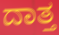
ದಾತ್ತ